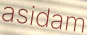
asidam